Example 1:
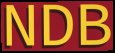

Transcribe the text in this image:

NDB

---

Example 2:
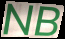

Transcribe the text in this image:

NB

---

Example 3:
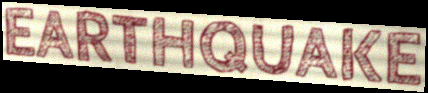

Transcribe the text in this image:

EARTHQUAKE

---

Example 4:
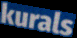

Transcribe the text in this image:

kurals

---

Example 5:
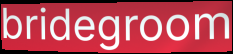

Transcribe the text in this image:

bridegroom